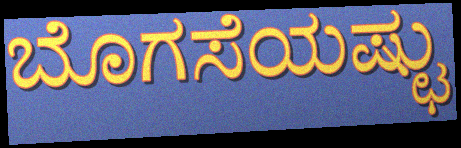
ಬೊಗಸೆಯಷ್ಟು